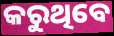
କରୁଥିବେ